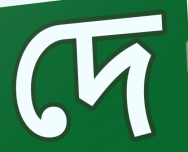
দে